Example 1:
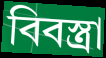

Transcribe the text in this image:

বিবস্ত্রা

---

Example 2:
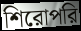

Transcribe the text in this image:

শিরোপরি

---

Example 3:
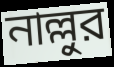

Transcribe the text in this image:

নাল্লুর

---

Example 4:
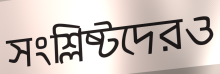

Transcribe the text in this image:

সংশ্লিষ্টদেরও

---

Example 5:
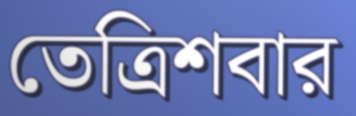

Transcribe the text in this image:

তেত্রিশবার